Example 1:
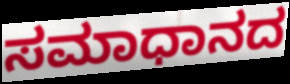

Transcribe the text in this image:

ಸಮಾಧಾನದ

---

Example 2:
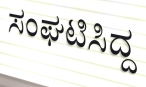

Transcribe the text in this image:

ಸಂಘಟಿಸಿದ್ದ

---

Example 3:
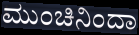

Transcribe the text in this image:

ಮುಂಚಿನಿಂದಾ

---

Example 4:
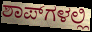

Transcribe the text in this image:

ಶಾಪ್‌ಗಳಲ್ಲಿ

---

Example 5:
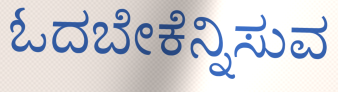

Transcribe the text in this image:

ಓದಬೇಕೆನ್ನಿಸುವ